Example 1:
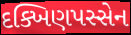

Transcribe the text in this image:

દક્ખિણપસ્સેન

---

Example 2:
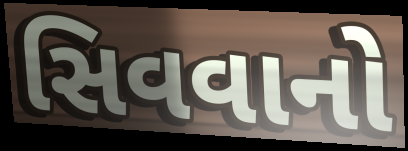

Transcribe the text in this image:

સિવવાનો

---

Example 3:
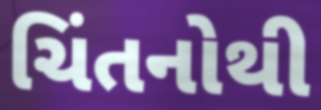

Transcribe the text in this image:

ચિંતનોથી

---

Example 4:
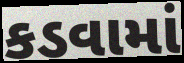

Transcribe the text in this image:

કડવામાં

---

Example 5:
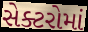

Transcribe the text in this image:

સેક્ટરોમાં